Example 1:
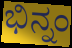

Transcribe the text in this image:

ಭಿನ್ನಂ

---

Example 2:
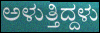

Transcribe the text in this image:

ಅಳುತ್ತಿದ್ದಳು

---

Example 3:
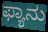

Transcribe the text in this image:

ಫ್ಯಾನು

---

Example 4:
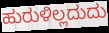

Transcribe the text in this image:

ಹುರುಳಿಲ್ಲದುದು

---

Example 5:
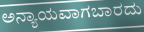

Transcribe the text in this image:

ಅನ್ಯಾಯವಾಗಬಾರದು